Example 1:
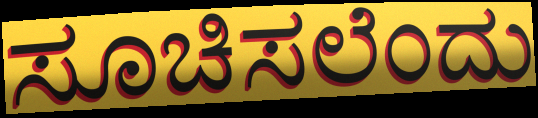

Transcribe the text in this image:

ಸೂಚಿಸಲೆಂದು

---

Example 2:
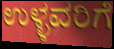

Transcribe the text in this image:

ಉಳ್ಳವರಿಗೆ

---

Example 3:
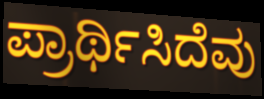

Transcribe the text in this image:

ಪ್ರಾರ್ಥಿಸಿದೆವು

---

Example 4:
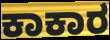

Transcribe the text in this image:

ಕಾಕಾರ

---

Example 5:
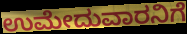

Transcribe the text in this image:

ಉಮೇದುವಾರನಿಗೆ